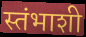
स्तंभाशी